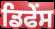
ਡਿਫੇਂਸ